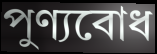
পুণ্যবোধ